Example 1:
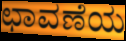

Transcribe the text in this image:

ಛಾವಣೆಯ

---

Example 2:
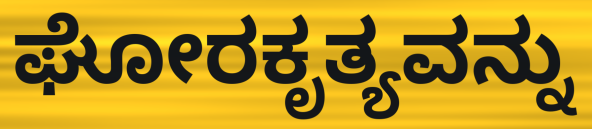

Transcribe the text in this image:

ಘೋರಕೃತ್ಯವನ್ನು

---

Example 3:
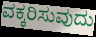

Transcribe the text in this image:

ವಕ್ಕರಿಸುವುದು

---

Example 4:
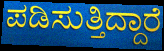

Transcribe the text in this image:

ಪಡಿಸುತ್ತಿದ್ದಾರೆ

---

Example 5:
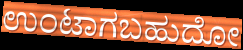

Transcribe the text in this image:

ಉಂಟಾಗಬಹುದೋ